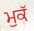
ਮੁਕੱ